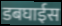
डबघाईस